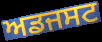
ਅਡਜਸਟ